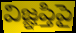
విజ్ఞప్తిపై